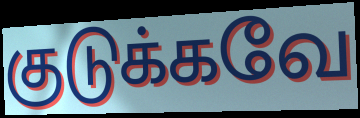
குடுக்கவே